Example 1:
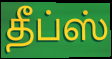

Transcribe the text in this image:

தீப்ஸ்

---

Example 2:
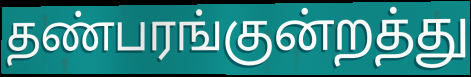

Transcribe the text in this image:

தண்பரங்குன்றத்து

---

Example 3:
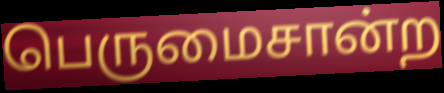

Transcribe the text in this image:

பெருமைசான்ற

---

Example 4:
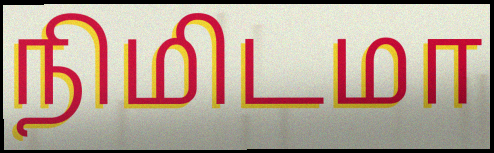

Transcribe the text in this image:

நிமிடமா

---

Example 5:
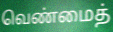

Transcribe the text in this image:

வெண்மைத்